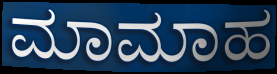
ಮಾಮಾಹ